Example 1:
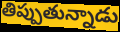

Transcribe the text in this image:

తిప్పుతున్నాడు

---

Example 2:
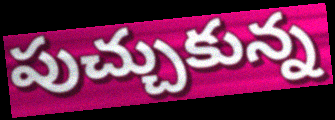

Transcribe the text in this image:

పుచ్చుకున్న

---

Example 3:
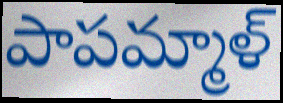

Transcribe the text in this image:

పాపమ్మాళ్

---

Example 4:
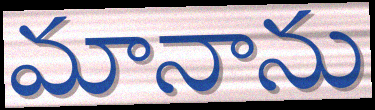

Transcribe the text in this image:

మానాను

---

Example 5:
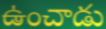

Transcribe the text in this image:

ఉంచాడు